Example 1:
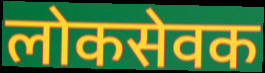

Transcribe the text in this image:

लोकसेवक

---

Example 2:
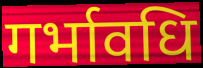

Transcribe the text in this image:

गर्भावधि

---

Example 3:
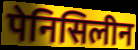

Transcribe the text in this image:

पेनिसिलीन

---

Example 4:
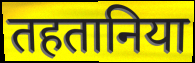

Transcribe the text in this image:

तहतानिया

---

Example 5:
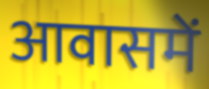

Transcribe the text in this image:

आवासमें